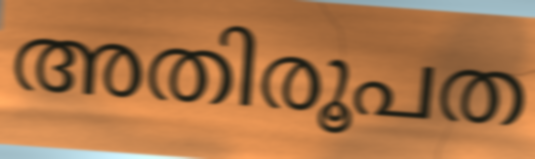
അതിരൂപത